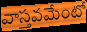
వాస్తవమేంటో